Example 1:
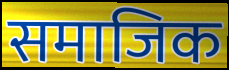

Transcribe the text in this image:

समाजिक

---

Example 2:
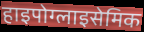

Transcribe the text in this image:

हाइपोग्लाइसेमिक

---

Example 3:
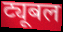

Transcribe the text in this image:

ट्यूबल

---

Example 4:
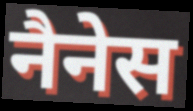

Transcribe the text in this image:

नैनेस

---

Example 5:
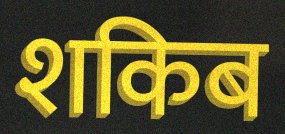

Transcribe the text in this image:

शकिब